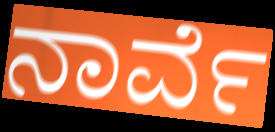
ನಾರ್ವೆ